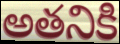
అతనికి